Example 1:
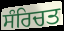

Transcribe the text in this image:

ਸੰਰਿਚਤ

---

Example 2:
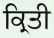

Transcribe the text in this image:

ਕ੍ਰਿਤੀ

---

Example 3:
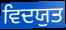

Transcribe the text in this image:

ਵਿਦਯੁਤ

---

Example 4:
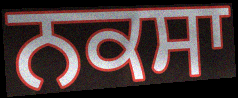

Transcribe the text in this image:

ਨਕਸਾ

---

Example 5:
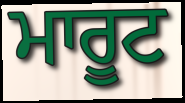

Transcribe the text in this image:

ਮਾਰੂਟ